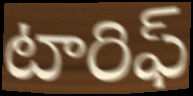
టారిఫ్